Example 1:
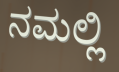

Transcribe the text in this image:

ನಮಲ್ಲಿ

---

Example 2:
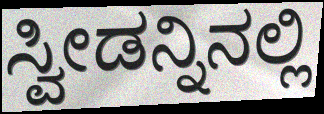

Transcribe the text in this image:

ಸ್ವೀಡನ್ನಿನಲ್ಲಿ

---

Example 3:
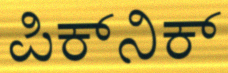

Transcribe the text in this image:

ಪಿಕ್‌ನಿಕ್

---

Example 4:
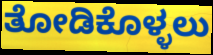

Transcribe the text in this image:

ತೋಡಿಕೊಳ್ಳಲು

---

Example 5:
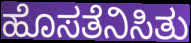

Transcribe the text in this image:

ಹೊಸತೆನಿಸಿತು